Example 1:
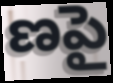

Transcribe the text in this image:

ణపై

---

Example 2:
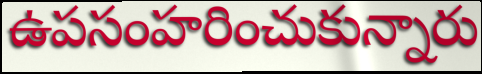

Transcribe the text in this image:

ఉపసంహరించుకున్నారు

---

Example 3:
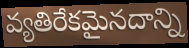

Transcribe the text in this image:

వ్యతిరేకమైనదాన్ని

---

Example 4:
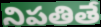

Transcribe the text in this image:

నిపతితే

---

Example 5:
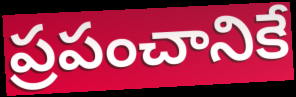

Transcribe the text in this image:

ప్రపంచానికే